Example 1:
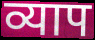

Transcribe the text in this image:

व्याप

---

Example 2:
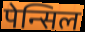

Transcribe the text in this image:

पेन्सिल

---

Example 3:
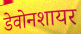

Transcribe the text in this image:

डेवोनशायर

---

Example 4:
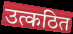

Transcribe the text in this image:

उत्कठित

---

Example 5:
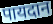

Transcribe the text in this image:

पायदान